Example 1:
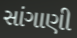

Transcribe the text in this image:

સાંગાણી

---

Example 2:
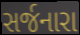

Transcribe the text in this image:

સર્જનારા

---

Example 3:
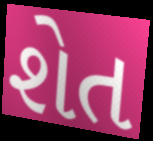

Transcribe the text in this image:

શેત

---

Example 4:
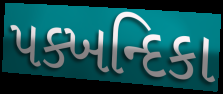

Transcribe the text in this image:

પક્ખન્દિકા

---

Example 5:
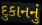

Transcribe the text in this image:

દુકાનનું